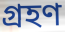
গ্রহণ